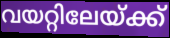
വയറ്റിലേയ്ക്ക്